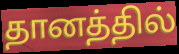
தானத்தில்